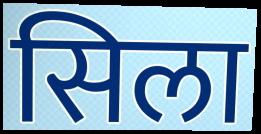
सिला